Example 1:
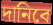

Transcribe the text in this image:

দানিবে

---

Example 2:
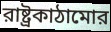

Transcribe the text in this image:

রাষ্ট্রকাঠামোর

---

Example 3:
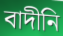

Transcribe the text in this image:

বাদীনি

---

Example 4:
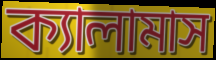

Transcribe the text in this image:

ক্যালামাস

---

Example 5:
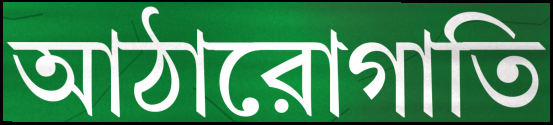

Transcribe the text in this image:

আঠারোগাতি